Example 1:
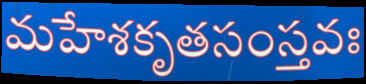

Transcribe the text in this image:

మహేశకృతసంస్తవః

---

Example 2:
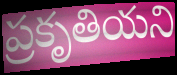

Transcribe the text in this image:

ప్రకృతియని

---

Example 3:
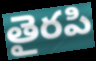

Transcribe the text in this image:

తైరపి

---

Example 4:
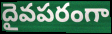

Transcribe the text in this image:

దైవపరంగా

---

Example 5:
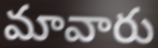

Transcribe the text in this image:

మావారు